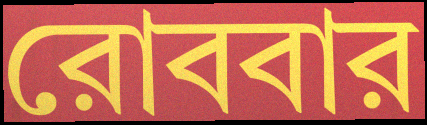
রোববার